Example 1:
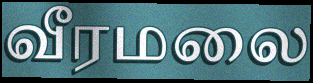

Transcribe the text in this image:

வீரமலை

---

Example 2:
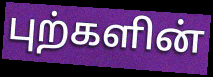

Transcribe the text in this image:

புற்களின்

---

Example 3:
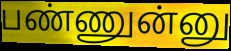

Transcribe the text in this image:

பண்ணுன்னு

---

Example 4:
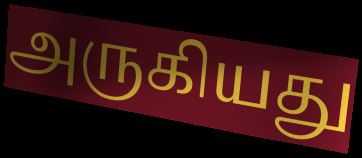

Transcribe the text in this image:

அருகியது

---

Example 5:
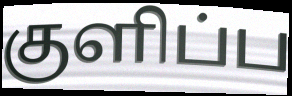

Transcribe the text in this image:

குளிப்ப